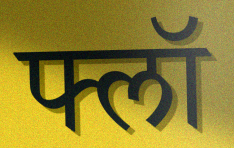
फ्लॉ